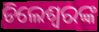
ଡିଲେଶ୍ଵରଙ୍କ